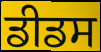
ਡੀਡਸ